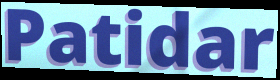
Patidar